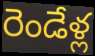
రెండేళ్ల